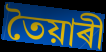
তৈয়াৰী